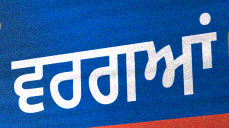
ਵਰਗਆਂ